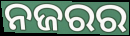
ନଜରର